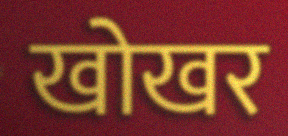
खोखर